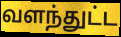
வளந்துட்ட